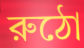
রুঠো